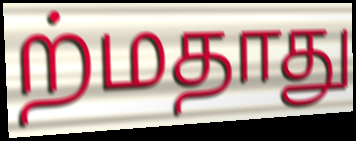
ற்மதாது